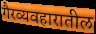
गैरव्यवहारातील